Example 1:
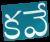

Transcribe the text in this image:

కవే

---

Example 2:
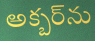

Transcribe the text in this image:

అక్బర్‌ను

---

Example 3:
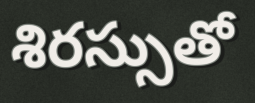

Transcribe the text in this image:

శిరస్సుతో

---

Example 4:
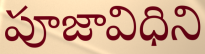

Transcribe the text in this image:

పూజావిధిని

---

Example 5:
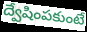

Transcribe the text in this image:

ద్వేషింపకుంటే